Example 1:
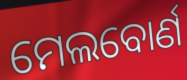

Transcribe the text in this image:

ମେଲବୋର୍ଣ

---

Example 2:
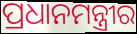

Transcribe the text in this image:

ପ୍ରଧାନମନ୍ତ୍ରୀର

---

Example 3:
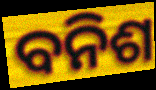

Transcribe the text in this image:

ବନିଶ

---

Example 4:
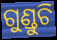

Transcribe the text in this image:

ଗୁଣ୍ଡୁଚି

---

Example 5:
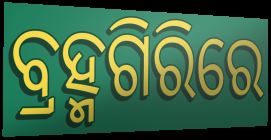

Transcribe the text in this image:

ବ୍ରହ୍ମଗିରିରେ